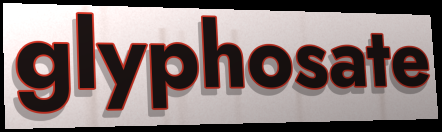
glyphosate